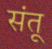
संतू